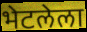
भेटलेला